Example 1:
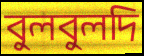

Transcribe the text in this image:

বুলবুলদি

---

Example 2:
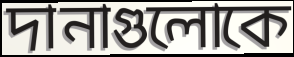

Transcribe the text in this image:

দানাগুলোকে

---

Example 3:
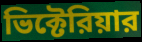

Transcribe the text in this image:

ভিক্টেরিয়ার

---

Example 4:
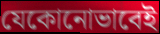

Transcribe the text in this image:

যেকোনোভাবেই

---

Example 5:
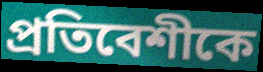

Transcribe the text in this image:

প্রতিবেশীকে